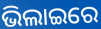
ଭିଲାଇରେ